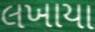
લખાયા